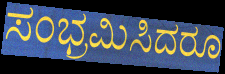
ಸಂಭ್ರಮಿಸಿದರೂ